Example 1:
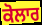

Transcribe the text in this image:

ਕੋਲਾਰ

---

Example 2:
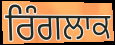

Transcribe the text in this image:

ਰਿੰਗਲਾਕ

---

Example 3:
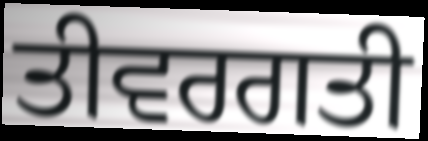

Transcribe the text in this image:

ਤੀਵਰਗਤੀ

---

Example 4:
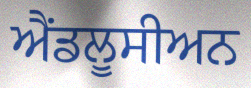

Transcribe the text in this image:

ਐਂਡਲੂਸੀਅਨ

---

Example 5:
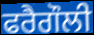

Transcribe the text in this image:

ਫਰੈਗੌਲੀ